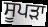
ਸੂਪੜਾ